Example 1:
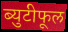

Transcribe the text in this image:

ब्युटीफूल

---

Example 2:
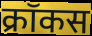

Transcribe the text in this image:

क्रॉकस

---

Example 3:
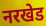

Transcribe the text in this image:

नरखेड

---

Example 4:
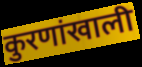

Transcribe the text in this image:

कुरणांखाली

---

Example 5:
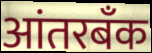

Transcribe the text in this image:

आंतरबँक